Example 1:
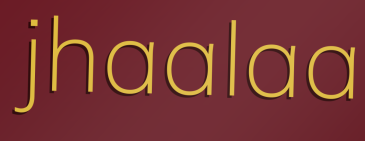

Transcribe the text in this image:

jhaalaa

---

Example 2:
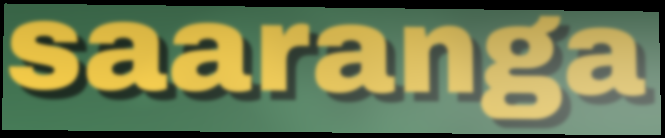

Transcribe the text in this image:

saaranga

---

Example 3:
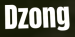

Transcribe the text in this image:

Dzong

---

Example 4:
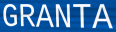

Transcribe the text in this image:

GRANTA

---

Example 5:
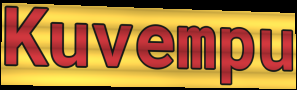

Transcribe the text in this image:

Kuvempu